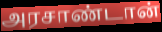
அரசாண்டான்